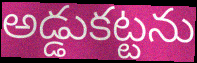
అడ్డుకట్టను